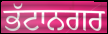
ਭੱਟਾਨਗਰ